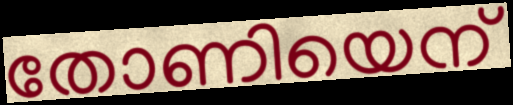
തോണിയെന്